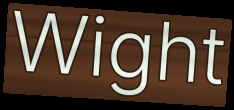
Wight